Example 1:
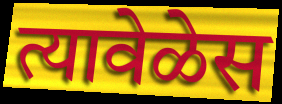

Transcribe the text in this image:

त्यावेळेस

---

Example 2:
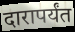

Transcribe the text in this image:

दारापर्यंत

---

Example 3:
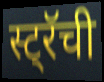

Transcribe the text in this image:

स्ट्रॅची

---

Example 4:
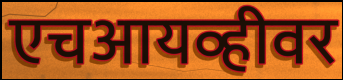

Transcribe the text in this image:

एचआयव्हीवर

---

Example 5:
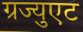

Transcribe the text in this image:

ग्रज्युएट